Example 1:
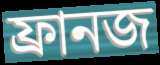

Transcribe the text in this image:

ফ্রানজ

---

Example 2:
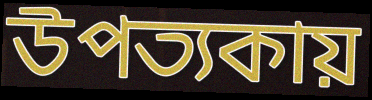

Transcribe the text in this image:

উপত্যকায়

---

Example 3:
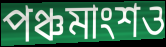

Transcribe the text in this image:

পঞ্চমাংশও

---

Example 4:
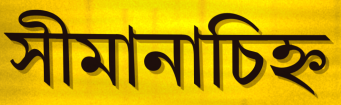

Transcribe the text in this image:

সীমানাচিহ্ন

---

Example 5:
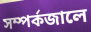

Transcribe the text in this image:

সম্পর্কজালে